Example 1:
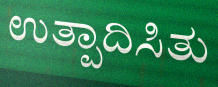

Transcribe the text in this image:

ಉತ್ಪಾದಿಸಿತು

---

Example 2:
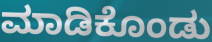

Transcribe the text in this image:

ಮಾಡಿಕೊಂಡು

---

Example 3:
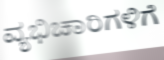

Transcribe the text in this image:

ವ್ಯಭಿಚಾರಿಗಳಿಗೆ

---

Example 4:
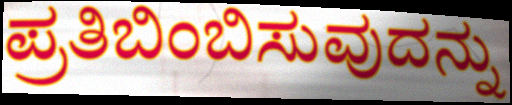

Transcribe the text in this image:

ಪ್ರತಿಬಿಂಬಿಸುವುದನ್ನು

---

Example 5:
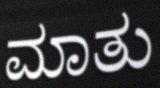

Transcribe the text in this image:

ಮಾತು